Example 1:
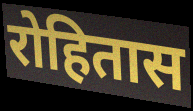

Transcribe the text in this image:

रोहितास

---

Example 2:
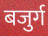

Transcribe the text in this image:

बजुर्ग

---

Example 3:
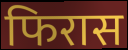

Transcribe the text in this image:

फिरास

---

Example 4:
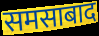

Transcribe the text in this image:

समसाबाद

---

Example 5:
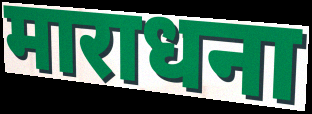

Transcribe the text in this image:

माराधना